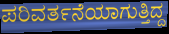
ಪರಿವರ್ತನೆಯಾಗುತ್ತಿದ್ದ